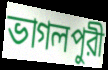
ভাগলপুরী